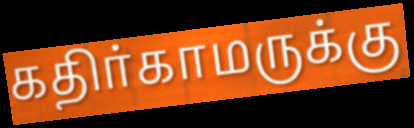
கதிர்காமருக்கு